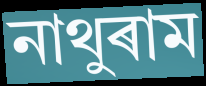
নাথুৰাম